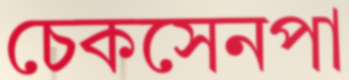
চেকসেনপা